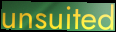
unsuited